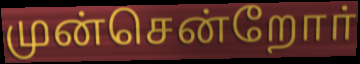
முன்சென்றோர்